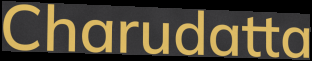
Charudatta